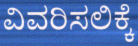
ವಿವರಿಸಲಿಕ್ಕೆ